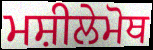
ਮਸ਼ੀਲੇਮੋਥ